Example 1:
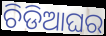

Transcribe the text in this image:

ଚିଡିଆଘର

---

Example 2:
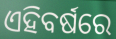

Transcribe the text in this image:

ଏହିବର୍ଷରେ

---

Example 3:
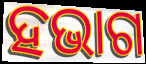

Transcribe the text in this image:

ହଭାଗ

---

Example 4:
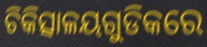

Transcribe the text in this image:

ଚିକିତ୍ସାଳୟଗୁଡିକରେ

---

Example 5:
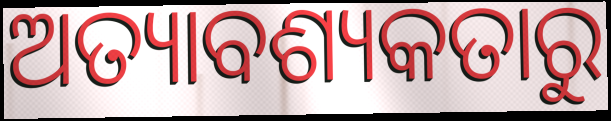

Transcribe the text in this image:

ଅତ୍ୟାବଶ୍ୟକତାରୁ